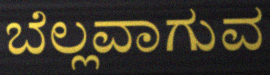
ಬೆಲ್ಲವಾಗುವ